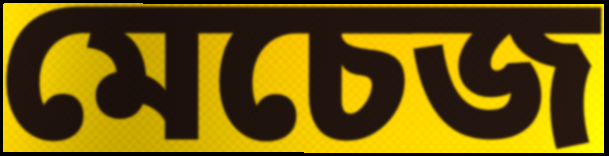
মেচেজ